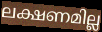
ലക്ഷണമില്ല